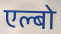
एल्बो